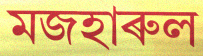
মজহাৰুল